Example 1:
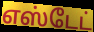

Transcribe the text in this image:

எஸ்டேட்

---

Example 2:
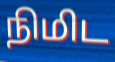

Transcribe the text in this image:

நிமிட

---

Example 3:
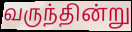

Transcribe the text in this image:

வருந்தின்று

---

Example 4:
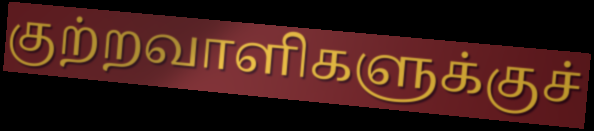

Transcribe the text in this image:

குற்றவாளிகளுக்குச்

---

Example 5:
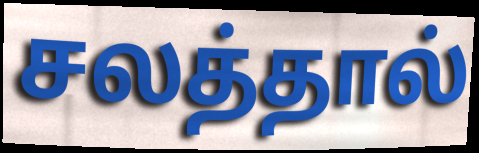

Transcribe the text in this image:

சலத்தால்